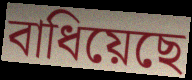
বাধিয়েছে